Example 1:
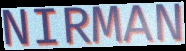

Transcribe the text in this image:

NIRMAN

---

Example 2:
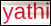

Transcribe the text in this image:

yathi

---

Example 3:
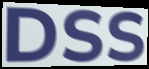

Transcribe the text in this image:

DSS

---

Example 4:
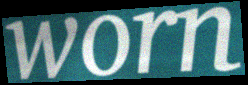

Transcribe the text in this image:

worn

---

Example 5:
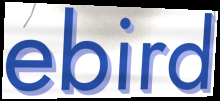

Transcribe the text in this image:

ebird